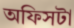
অফিসটা